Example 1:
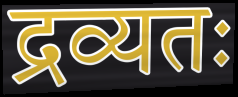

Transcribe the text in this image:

द्रव्यतः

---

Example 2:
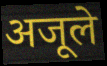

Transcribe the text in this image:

अजूले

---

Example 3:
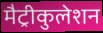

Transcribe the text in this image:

मैट्रीकुलेशन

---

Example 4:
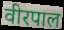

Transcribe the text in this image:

वीरपाल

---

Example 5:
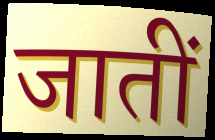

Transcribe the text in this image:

जातीं